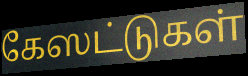
கேஸட்டுகள்